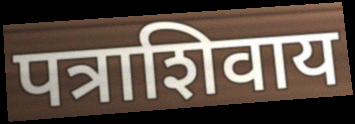
पत्राशिवाय